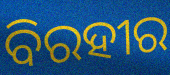
ବିରହୀର